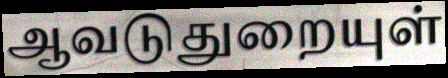
ஆவடுதுறையுள்